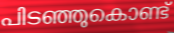
പിടഞ്ഞുകൊണ്ട്